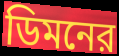
ডিমনের